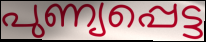
പുണ്യപ്പെട്ട